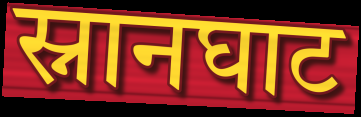
स्नानघाट